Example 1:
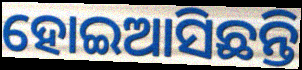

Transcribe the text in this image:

ହୋଇଆସିଛନ୍ତି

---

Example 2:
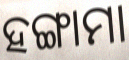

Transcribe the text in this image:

ହଙ୍ଗାମା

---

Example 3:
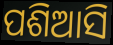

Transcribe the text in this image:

ପଶିଆସି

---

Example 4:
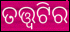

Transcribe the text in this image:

ତତ୍ତ୍ଵଟିର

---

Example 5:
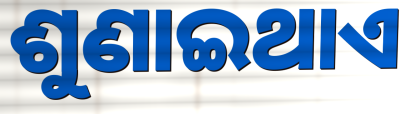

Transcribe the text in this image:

ଶୁଣାଇଥାଏ